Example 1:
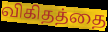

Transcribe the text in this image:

விகிதத்தை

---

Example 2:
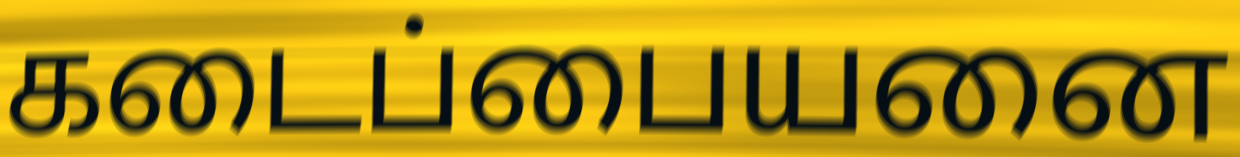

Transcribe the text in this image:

கடைப்பையனை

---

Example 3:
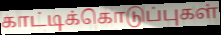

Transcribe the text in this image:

காட்டிக்கொடுப்புகள்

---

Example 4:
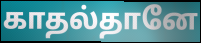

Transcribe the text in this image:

காதல்தானே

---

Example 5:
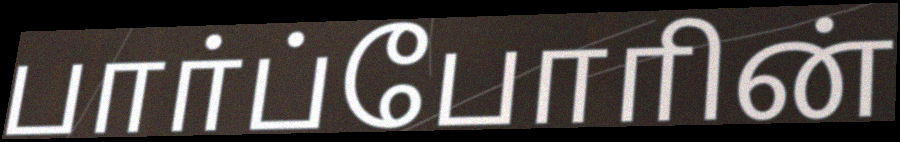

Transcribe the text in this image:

பார்ப்போரின்